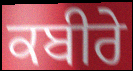
ਕਬੀਰੇ